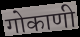
गोकाणी